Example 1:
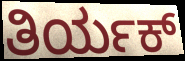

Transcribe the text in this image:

ತಿರ್ಯಕ್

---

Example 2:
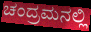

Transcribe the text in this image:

ಚಂದ್ರಮನಲ್ಲಿ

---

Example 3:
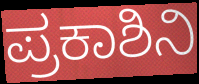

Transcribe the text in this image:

ಪ್ರಕಾಶಿನಿ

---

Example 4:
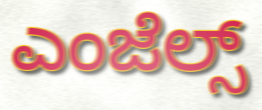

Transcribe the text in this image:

ಎಂಜೆಲ್ಸ್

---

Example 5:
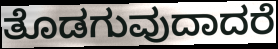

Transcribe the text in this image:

ತೊಡಗುವುದಾದರೆ